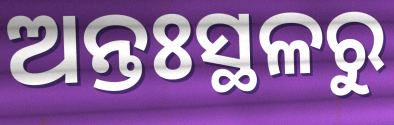
ଅନ୍ତଃସ୍ଥଳରୁ